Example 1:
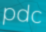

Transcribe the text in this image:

pdc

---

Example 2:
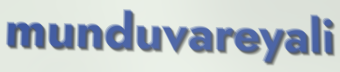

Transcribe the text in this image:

munduvareyali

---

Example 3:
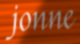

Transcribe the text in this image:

jonne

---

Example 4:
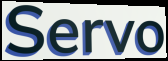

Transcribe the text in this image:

Servo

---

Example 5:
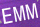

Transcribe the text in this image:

EMM